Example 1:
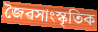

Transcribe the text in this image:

জৈৱসাংস্কৃতিক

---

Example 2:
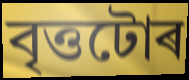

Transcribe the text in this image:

বৃত্তটোৰ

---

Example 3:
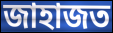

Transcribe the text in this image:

জাহাজত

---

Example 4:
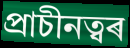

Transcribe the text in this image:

প্ৰাচীনত্বৰ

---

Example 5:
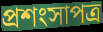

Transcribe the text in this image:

প্ৰশংসাপত্ৰ